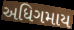
અધિગમાય